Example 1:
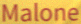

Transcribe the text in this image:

Malone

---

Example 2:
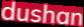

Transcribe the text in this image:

dushan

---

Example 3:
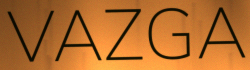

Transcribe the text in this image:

VAZGA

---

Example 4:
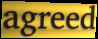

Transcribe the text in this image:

agreed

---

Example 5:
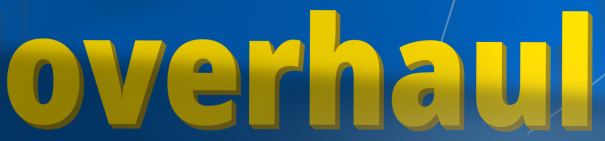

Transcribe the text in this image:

overhaul